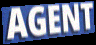
AGENT